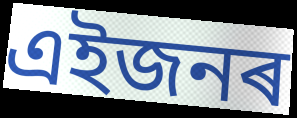
এইজনৰ